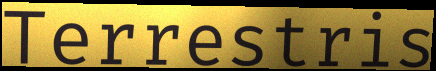
Terrestris